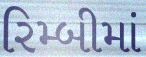
રિમ્બીમાં